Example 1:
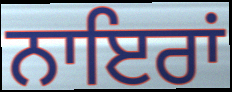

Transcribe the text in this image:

ਨਾਇਰਾਂ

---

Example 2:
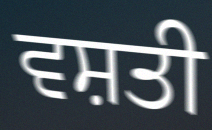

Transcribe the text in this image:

ਵਸ਼ਤੀ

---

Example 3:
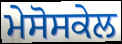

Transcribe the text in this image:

ਮੇਸੋਸਕੇਲ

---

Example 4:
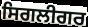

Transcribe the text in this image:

ਸਿਗਲੀਗਰ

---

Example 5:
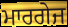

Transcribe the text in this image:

ਮਾਰਗੇਜ